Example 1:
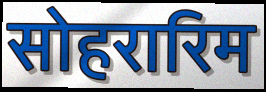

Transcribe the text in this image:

सोहरारिम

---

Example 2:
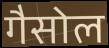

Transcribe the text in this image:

गैसोल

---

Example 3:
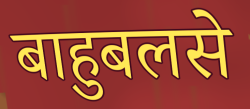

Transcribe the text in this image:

बाहुबलसे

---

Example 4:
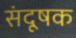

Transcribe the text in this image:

संदूषक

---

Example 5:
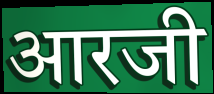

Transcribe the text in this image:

आरजी